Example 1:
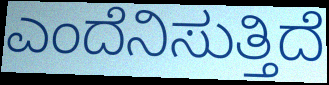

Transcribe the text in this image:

ಎಂದೆನಿಸುತ್ತಿದೆ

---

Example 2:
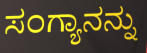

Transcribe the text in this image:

ಸಂಗ್ಯಾನನ್ನು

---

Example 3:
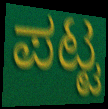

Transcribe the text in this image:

ಪಟ್ಟ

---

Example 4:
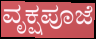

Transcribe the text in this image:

ವೃಕ್ಷಪೂಜೆ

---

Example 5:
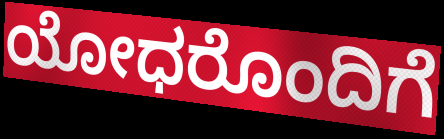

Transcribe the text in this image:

ಯೋಧರೊಂದಿಗೆ